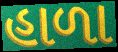
હાળા